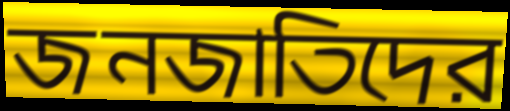
জনজাতিদের